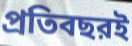
প্রতিবছরই